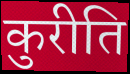
कुरीति